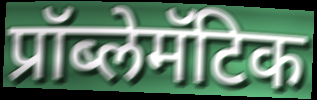
प्रॉब्लेमॅटिक